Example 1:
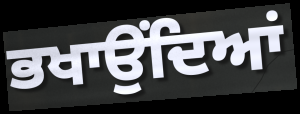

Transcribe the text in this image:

ਭਖਾਉਂਦਿਆਂ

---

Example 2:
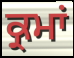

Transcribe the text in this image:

ਕ੍ਰਮਾਂ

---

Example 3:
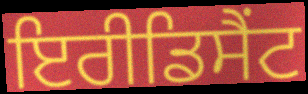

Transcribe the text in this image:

ਇਰੀਡਿਸੈਂਟ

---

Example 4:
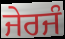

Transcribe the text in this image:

ਜੇਰਜੰ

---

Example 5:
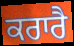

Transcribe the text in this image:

ਕਰਾਰੈ